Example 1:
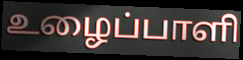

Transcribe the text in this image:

உழைப்பாளி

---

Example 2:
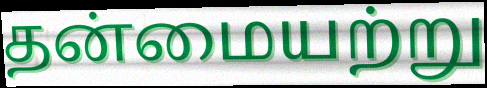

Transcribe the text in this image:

தன்மையற்று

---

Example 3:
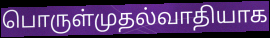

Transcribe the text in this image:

பொருள்முதல்வாதியாக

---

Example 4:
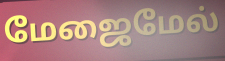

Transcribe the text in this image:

மேஜைமேல்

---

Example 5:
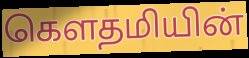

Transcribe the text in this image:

கெளதமியின்